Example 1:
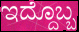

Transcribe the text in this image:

ಇದ್ದೊಬ್ಬ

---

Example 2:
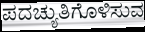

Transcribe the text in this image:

ಪದಚ್ಯುತಿಗೊಳಿಸುವ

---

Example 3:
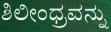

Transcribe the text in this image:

ಶಿಲೀಂಧ್ರವನ್ನು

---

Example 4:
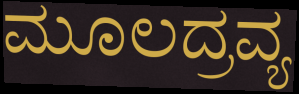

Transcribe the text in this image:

ಮೂಲದ್ರವ್ಯ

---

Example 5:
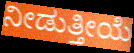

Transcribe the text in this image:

ನೀಡುತ್ತೀಯೆ